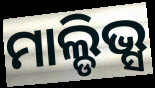
ମାଲ୍ଡିଭ୍ସ